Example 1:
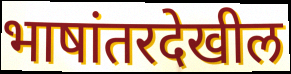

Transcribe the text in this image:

भाषांतरदेखील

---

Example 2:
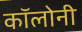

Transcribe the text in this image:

कॉलोनी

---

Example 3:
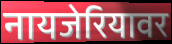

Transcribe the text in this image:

नायजेरियावर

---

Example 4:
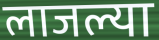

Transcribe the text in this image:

लाजल्या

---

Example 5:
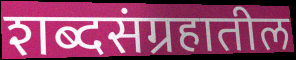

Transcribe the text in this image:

शब्दसंग्रहातील